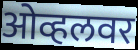
ओव्हलवर